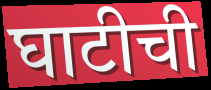
घाटीची